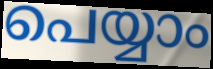
പെയ്യാം